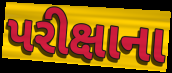
પરીક્ષાના